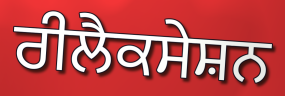
ਰੀਲੈਕਸੇਸ਼ਨ